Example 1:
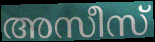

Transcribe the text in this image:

അസീസ്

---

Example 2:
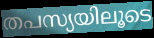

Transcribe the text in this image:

തപസ്യയിലൂടെ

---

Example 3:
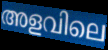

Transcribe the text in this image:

അളവിലെ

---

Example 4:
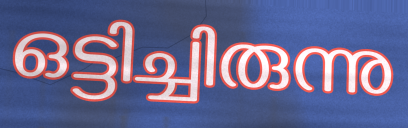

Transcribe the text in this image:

ഒട്ടിച്ചിരുന്നു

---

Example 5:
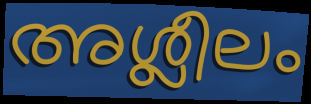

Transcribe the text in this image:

അശ്ലീലം